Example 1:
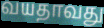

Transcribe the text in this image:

வயதாவது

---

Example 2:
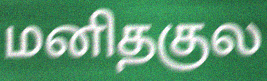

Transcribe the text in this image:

மனிதகுல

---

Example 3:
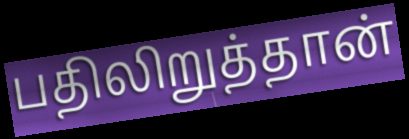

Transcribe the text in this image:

பதிலிறுத்தான்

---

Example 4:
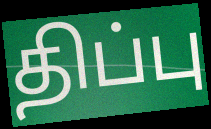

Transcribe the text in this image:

திப்பு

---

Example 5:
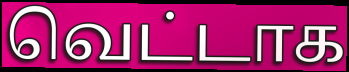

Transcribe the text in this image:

வெட்டாக